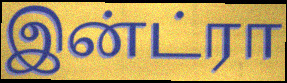
இன்ட்ரா